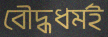
বৌদ্ধধৰ্মই